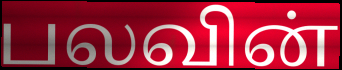
பலவின்